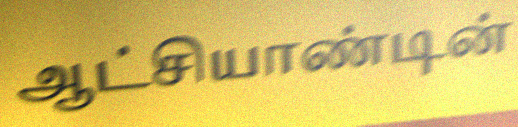
ஆட்சியாண்டின்